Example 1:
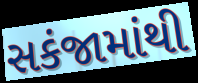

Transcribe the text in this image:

સકંજામાંથી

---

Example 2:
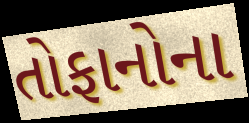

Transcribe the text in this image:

તોફાનોના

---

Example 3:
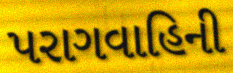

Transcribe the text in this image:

પરાગવાહિની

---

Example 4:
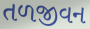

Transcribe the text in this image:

તળજીવન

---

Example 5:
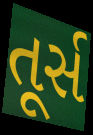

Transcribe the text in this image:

તૂર્સ